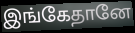
இங்கேதானே